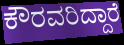
ಕೌರವರಿದ್ದಾರೆ